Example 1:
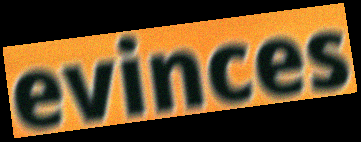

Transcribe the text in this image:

evinces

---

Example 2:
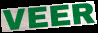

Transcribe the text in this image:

VEER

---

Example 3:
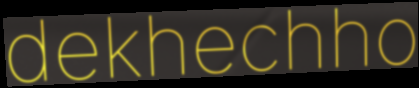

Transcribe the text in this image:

dekhechho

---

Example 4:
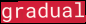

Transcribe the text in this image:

gradual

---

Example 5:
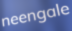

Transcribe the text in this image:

neengale